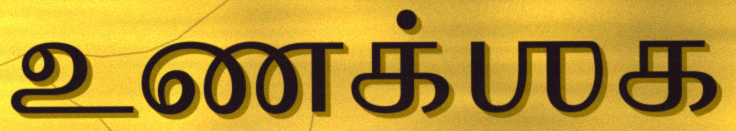
உணக்ஶக